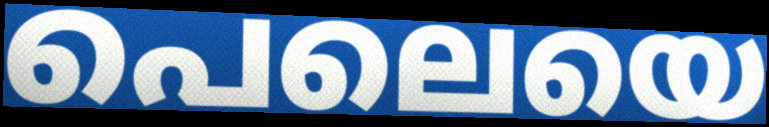
പെലെയെ